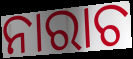
ନାରାଚ